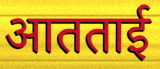
आतताई